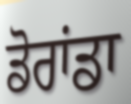
ਡੋਰਾਂਡਾ